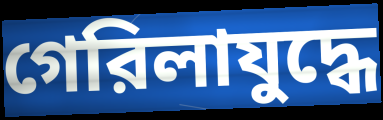
গেরিলাযুদ্ধে